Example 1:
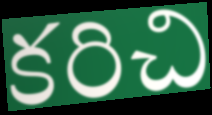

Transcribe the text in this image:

కరిచి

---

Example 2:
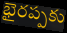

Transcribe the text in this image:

భైరప్పకు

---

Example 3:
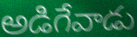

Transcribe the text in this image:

అడిగేవాడు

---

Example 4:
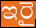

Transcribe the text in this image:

ఇరై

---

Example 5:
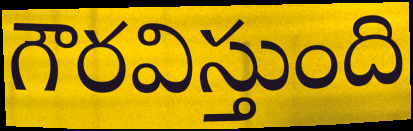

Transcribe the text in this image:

గౌరవిస్తుంది